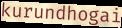
kurundhogai